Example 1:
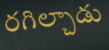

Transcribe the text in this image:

రగిల్చాడు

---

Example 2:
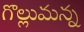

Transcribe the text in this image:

గొల్లుమన్న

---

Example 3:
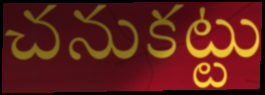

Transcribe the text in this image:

చనుకట్టు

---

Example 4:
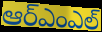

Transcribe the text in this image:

ఆర్ఎంఎల్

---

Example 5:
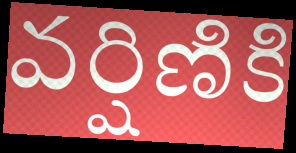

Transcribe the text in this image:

వర్షిణికి